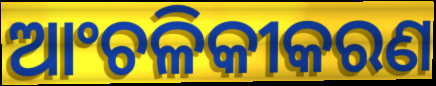
ଆଂଚଳିକୀକରଣ